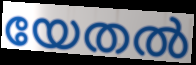
യേതൽ